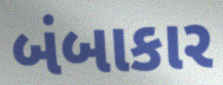
બંબાકાર